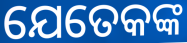
ଯେତେକଙ୍କ